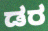
ಡರ